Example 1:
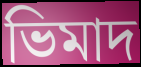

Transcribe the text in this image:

ভিমাদ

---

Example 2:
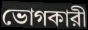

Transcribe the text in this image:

ভোগকারী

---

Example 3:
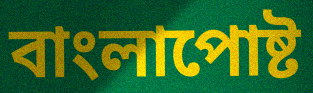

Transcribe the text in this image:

বাংলাপোষ্ট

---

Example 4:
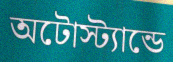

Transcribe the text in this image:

অটোস্ট্যান্ডে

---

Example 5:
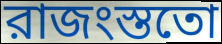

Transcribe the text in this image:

রাজংস্ততো